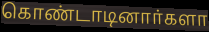
கொண்டாடினார்களா